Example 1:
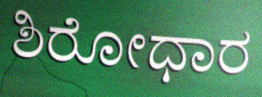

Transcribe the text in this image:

ಶಿರೋಧಾರ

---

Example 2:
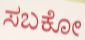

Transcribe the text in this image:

ಸಬಕೋ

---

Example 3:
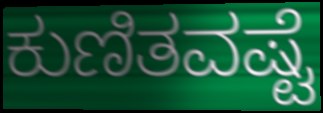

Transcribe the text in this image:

ಕುಣಿತವಷ್ಟೆ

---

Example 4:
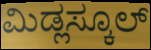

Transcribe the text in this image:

ಮಿಡ್ಲಸ್ಕೂಲ್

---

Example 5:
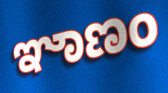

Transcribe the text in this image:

ಞಾಣಂ